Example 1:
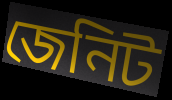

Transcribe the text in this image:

জেনিট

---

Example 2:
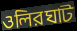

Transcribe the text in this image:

ওলিরঘাট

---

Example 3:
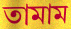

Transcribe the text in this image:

তামাম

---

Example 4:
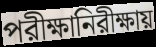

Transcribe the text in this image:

পরীক্ষানিরীক্ষায়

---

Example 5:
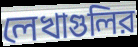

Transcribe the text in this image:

লেখাগুলির